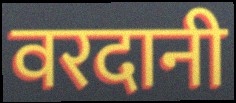
वरदानी